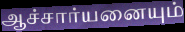
ஆச்சார்யனையும்